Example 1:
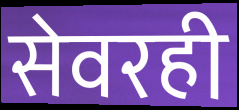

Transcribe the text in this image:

सेवरही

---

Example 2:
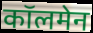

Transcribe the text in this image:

कॉलमेन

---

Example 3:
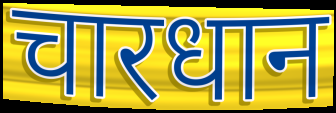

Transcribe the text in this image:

चारधान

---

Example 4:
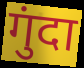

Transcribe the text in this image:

गुंदा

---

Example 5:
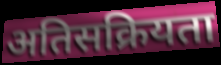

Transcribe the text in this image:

अतिसक्रियता